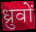
ध्रुवों